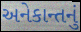
અનેકાન્તનું